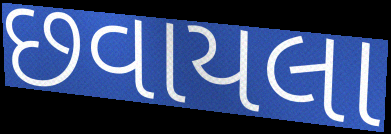
છવાયલા